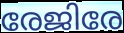
രേജിരേ